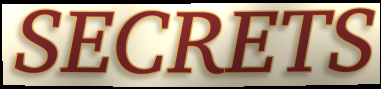
SECRETS